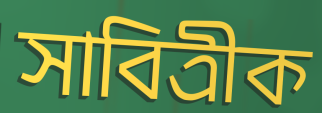
সাবিত্ৰীক